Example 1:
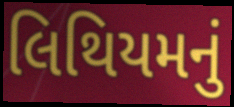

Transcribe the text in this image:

લિથિયમનું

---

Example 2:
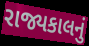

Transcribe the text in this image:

રાજ્યકાલનું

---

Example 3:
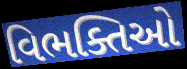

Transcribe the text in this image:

વિભક્તિઓ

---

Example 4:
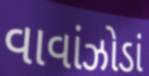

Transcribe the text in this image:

વાવાંઝોડાં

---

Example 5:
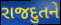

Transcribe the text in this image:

રાજદુતને